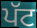
ਪੱਟ